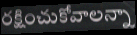
రక్షించుకోవాలన్నా